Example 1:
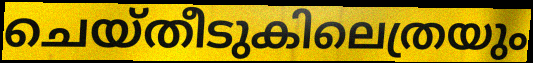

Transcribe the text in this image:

ചെയ്തീടുകിലെത്രയും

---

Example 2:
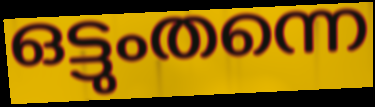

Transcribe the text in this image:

ഒട്ടുംതന്നെ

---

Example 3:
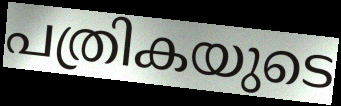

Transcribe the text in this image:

പത്രികയുടെ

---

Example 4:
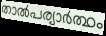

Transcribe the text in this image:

താൽപര്യാർത്ഥം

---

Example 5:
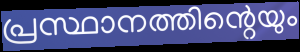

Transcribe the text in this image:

പ്രസ്ഥാനത്തിന്റെയും